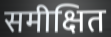
समीक्षित